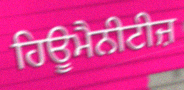
ਹਿਊਮੈਨੀਟੀਜ਼